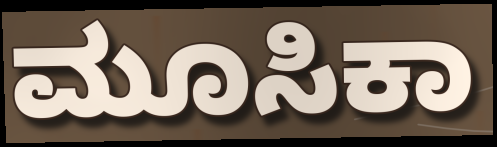
ಮೂಸಿಕಾ